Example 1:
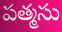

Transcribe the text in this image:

పత్మసు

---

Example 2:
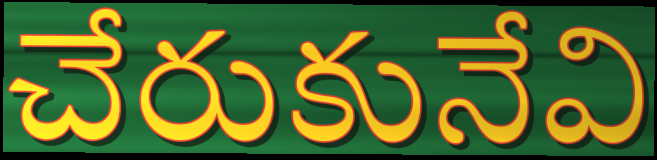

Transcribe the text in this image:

చేరుకునేవి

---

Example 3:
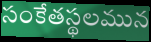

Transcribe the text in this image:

సంకేతస్థలమున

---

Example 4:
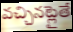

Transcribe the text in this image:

వచ్చినట్లైతే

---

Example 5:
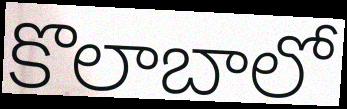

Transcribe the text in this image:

కొలాబాలో